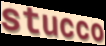
stucco